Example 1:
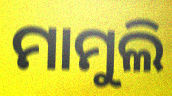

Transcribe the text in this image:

ମାମୁଲି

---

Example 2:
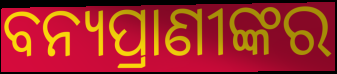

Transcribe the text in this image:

ବନ୍ୟପ୍ରାଣୀଙ୍କର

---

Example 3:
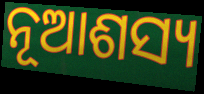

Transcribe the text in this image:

ନୂଆଶସ୍ୟ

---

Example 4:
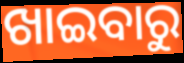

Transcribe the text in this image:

ଖାଇବାରୁ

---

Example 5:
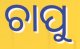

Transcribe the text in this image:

ଚାପୁ